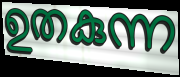
ഉതകുന്ന